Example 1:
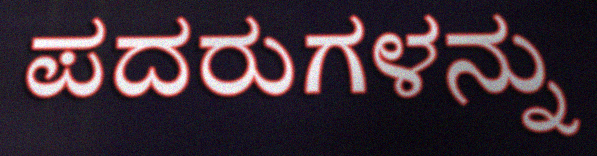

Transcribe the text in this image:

ಪದರುಗಳನ್ನು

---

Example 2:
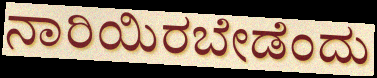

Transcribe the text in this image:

ನಾರಿಯಿರಬೇಡೆಂದು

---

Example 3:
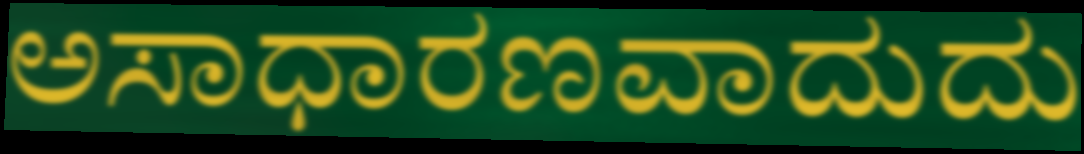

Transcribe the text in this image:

ಅಸಾಧಾರಣವಾದುದು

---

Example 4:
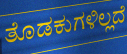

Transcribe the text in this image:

ತೊಡಕುಗಳಿಲ್ಲದೆ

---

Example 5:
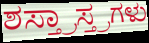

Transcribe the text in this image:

ಶಸ್ತ್ರಾಸ್ತ್ರಗಳು